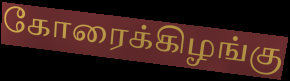
கோரைக்கிழங்கு